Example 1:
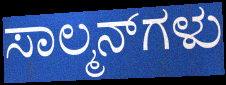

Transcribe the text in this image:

ಸಾಲ್ಮನ್‌ಗಳು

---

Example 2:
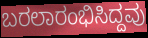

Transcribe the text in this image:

ಬರಲಾರಂಭಿಸಿದ್ದವು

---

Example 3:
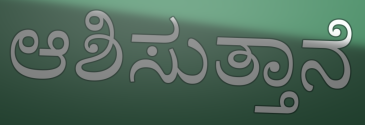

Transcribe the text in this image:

ಆಶಿಸುತ್ತಾನೆ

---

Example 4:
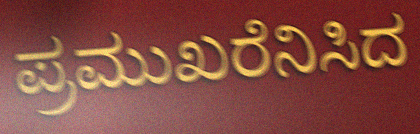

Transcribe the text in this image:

ಪ್ರಮುಖರೆನಿಸಿದ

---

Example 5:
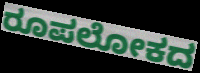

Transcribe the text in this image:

ರೂಪಲೋಕದ